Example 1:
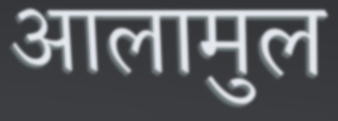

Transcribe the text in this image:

आलामुल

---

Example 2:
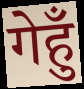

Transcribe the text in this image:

गेहुँ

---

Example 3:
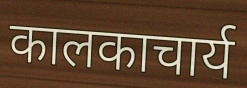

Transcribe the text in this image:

कालकाचार्य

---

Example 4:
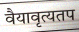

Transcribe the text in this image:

वैयावृत्यतप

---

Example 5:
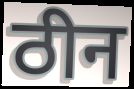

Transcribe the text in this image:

ठीन